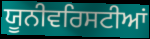
ਯੂਨੀਵਰਿਸਟੀਆਂ